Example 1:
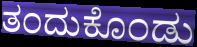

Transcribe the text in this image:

ತಂದುಕೊಂಡು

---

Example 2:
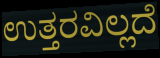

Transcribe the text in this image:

ಉತ್ತರವಿಲ್ಲದೆ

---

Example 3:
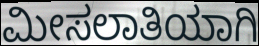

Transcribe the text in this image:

ಮೀಸಲಾತಿಯಾಗಿ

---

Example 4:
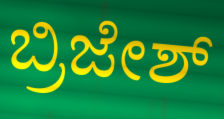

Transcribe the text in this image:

ಬ್ರಿಜೇಶ್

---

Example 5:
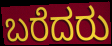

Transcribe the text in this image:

ಬರೆದರು